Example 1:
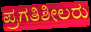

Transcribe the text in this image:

ಪ್ರಗತಿಶೀಲರು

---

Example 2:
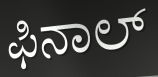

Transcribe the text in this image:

ಫಿನಾಲ್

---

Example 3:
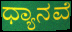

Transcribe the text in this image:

ಧ್ಯಾನವೆ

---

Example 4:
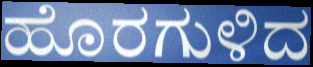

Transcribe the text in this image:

ಹೊರಗುಳಿದ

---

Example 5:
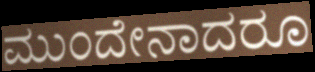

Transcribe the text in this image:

ಮುಂದೇನಾದರೂ